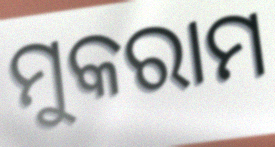
ମୁକରାମ